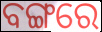
ବଙ୍ଗରେ